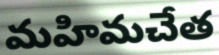
మహిమచేత